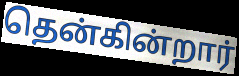
தென்கின்றார்